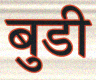
बुडी